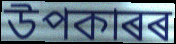
উপকাৰৰ